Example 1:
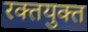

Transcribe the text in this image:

रक्तयुक्त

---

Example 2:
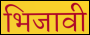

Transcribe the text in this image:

भिजावी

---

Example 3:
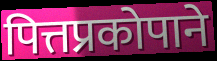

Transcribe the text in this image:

पित्तप्रकोपाने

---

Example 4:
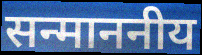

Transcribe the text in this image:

सन्माननीय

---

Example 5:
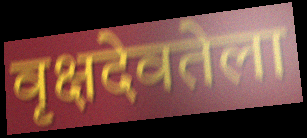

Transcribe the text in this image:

वृक्षदेवतेला